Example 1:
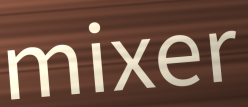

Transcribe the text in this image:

mixer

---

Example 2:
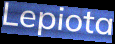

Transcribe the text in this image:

Lepiota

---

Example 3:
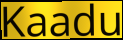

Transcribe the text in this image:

Kaadu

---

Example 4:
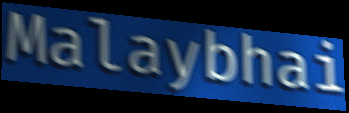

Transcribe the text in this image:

Malaybhai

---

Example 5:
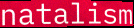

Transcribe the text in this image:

natalism